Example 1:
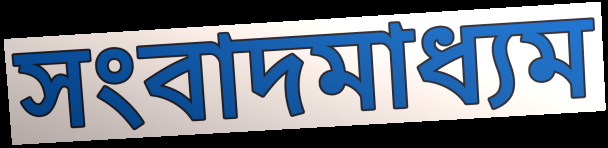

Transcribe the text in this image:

সংবাদমাধ্যম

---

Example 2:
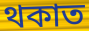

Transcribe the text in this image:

থকাত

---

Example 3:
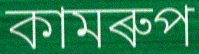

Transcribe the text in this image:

কামৰুপ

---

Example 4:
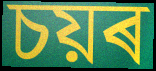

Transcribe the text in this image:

চয়ৰ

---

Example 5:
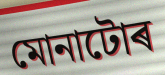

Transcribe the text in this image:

মোনাটোৰ